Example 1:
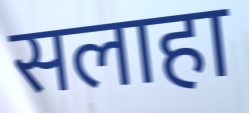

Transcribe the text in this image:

सलाहा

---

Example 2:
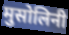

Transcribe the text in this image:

मुसोलिनी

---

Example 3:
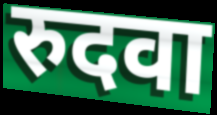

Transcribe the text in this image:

रुदवा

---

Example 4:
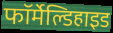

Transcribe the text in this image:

फॉर्मेल्डिहाइड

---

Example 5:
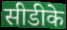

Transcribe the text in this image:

सीडीके